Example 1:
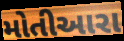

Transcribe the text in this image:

મોતીઆરા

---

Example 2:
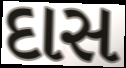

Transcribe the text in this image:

દાસ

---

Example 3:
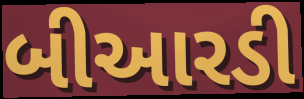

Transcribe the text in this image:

બીઆરડી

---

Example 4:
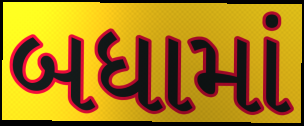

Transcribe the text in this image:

બધામાં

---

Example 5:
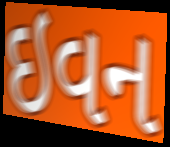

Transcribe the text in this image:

ઇવન